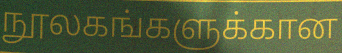
நூலகங்களுக்கான